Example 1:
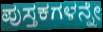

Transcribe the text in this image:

ಪುಸ್ತಕಗಳನ್ನೇ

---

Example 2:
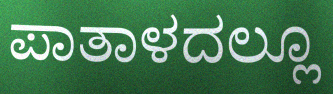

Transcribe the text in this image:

ಪಾತಾಳದಲ್ಲೂ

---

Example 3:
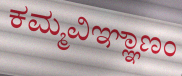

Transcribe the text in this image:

ಕಮ್ಮವಿಞ್ಞಾಣಂ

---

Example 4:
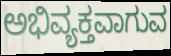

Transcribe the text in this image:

ಅಭಿವ್ಯಕ್ತವಾಗುವ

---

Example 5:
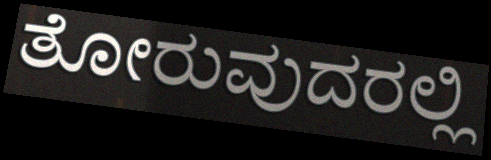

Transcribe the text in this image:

ತೋರುವುದರಲ್ಲಿ